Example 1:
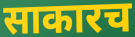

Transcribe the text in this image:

साकारच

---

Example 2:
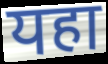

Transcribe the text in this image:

यहा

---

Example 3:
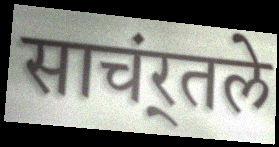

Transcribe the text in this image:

साचंर्तले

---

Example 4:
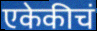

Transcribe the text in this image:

एकेकीचं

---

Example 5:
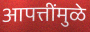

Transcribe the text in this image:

आपत्तींमुळे